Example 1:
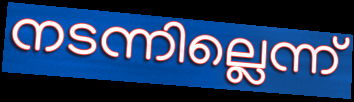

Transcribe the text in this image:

നടന്നില്ലെന്ന്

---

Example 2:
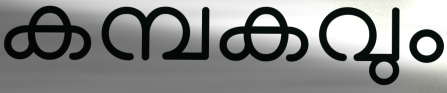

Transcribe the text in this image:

കമ്പകവും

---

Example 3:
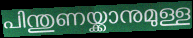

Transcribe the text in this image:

പിന്തുണയ്ക്കാനുമുള്ള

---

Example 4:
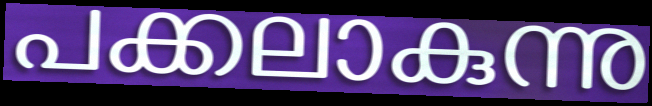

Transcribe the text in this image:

പക്കലാകുന്നു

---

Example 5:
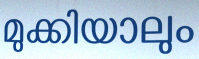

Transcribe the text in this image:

മുക്കിയാലും